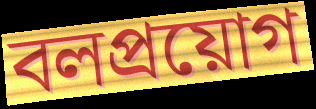
বলপ্রয়োগ